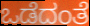
ಒಡೆದಂತೆ